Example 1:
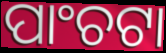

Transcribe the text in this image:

ପାଂଚଟା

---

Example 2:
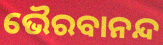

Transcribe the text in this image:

ଭୈରବାନନ୍ଦ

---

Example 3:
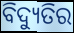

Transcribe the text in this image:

ବିଦ୍ୟୁତିର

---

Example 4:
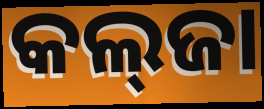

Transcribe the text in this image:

କଲ୍‌ଜା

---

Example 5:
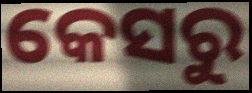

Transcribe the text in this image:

କେସରୁ